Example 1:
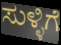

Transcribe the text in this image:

ಸುಳ್ಳಿಗೆ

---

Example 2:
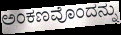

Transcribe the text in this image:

ಅಂಕಣವೊಂದನ್ನು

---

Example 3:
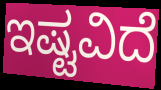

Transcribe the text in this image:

ಇಷ್ಟವಿದೆ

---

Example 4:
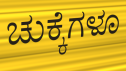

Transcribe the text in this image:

ಚುಕ್ಕೆಗಳೂ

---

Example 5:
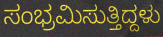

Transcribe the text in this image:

ಸಂಭ್ರಮಿಸುತ್ತಿದ್ದಳು